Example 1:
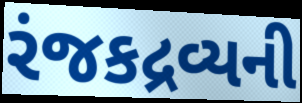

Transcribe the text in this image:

રંજકદ્રવ્યની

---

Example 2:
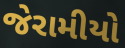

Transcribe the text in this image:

જેરામીયો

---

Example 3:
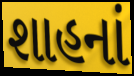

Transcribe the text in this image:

શાહનાં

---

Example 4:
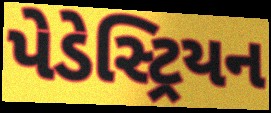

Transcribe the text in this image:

પેડેસ્ટ્રિયન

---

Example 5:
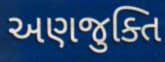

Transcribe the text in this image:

અણજુક્તિ